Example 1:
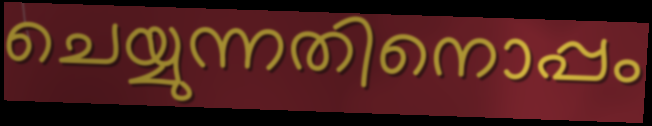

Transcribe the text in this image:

ചെയ്യുന്നതിനൊപ്പം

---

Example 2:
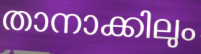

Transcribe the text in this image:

താനാക്കിലും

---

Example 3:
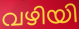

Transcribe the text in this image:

വഴിയി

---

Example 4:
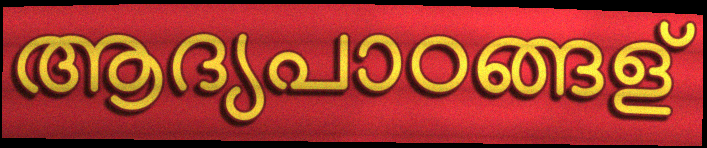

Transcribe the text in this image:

ആദ്യപാഠങ്ങള്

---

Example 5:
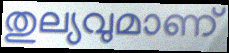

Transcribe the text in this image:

തുല്യവുമാണ്